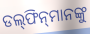
ଡଲ୍‍ଫିନ୍‍ମାନଙ୍କୁ